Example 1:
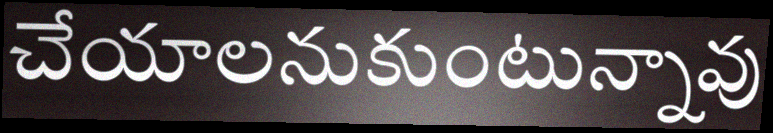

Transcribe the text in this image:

చేయాలనుకుంటున్నావు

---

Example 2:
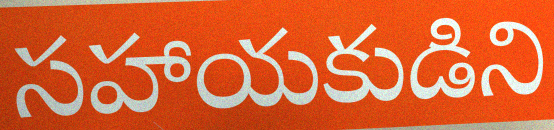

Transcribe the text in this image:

సహాయకుడిని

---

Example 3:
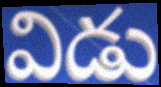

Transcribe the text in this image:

విడు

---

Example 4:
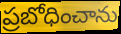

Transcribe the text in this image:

ప్రబోధించాను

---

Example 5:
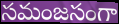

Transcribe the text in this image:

సమంజసంగా